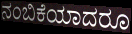
ನಂಬಿಕೆಯಾದರೂ